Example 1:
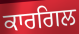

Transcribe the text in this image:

ਕਾਰਗਿਲ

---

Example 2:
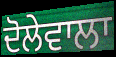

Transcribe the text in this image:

ਦੋਲੇਵਾਲਾ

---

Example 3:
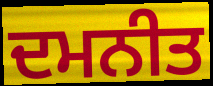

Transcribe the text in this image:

ਦਮਨੀਤ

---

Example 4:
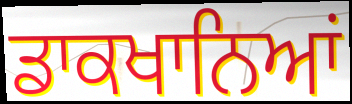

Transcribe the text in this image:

ਡਾਕਖਾਨਿਆਂ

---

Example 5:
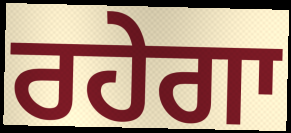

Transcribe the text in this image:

ਰਹੇਗਾ